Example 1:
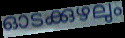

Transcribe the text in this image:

ഓടക്കുഴലും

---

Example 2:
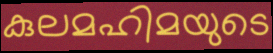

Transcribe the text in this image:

കുലമഹിമയുടെ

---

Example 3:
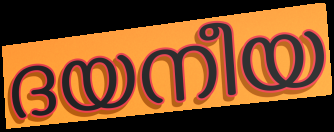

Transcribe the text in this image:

ദയനീയ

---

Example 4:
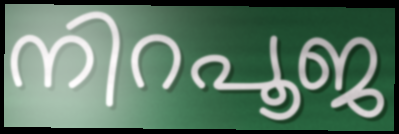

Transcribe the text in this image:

നിറപൂജ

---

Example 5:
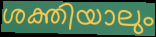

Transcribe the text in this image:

ശക്തിയാലും